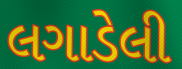
લગાડેલી